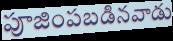
పూజింపబడినవాడు